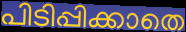
പിടിപ്പിക്കാതെ